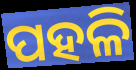
ପହଳି